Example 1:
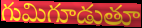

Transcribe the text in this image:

గుమిగూడుతూ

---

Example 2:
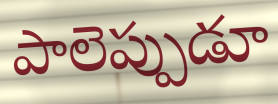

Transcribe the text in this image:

పాలెప్పుడూ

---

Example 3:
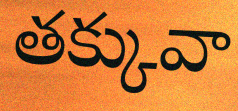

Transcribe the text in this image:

తక్కువా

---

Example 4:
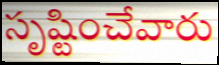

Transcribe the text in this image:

సృష్టించేవారు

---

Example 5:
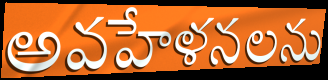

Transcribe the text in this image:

అవహేళనలను